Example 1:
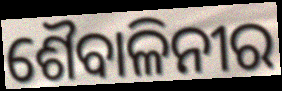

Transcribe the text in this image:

ଶୈବାଳିନୀର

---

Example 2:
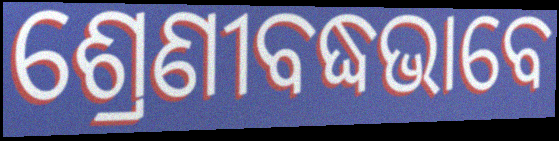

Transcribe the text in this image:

ଶ୍ରେଣୀବଦ୍ଧଭାବେ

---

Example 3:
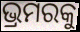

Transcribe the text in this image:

ଭ୍ରମରକୁ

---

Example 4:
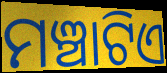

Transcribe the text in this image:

ମଞ୍ଚାଟିଏ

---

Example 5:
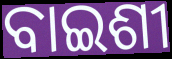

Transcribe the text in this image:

ବାଇଶୀ